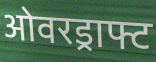
ओवरड्राफ्ट